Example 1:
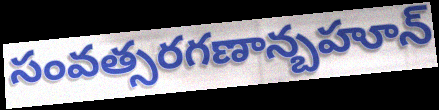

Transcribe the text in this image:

సంవత్సరగణాన్బహూన్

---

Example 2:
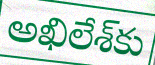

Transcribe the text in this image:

అఖిలేశ్‌కు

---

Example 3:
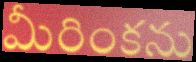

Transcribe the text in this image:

మీరింకను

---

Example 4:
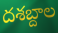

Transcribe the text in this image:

దశబ్దాల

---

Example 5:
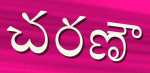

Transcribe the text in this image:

చరణౌ